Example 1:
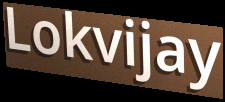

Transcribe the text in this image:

Lokvijay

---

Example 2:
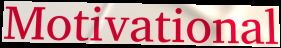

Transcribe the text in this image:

Motivational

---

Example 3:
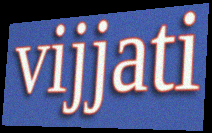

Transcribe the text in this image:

vijjati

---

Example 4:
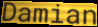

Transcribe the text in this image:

Damian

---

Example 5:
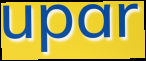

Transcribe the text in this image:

upar